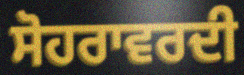
ਸੋਹਰਾਵਰਦੀ